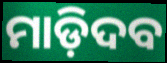
ମାଡ଼ିଦବ